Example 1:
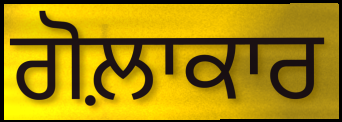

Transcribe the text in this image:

ਗੋਲ਼ਾਕਾਰ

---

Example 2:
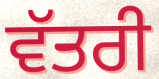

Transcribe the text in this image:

ਵੱਤਰੀ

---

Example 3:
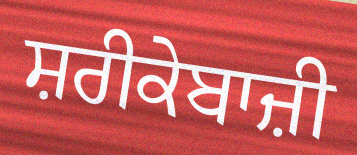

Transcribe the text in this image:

ਸ਼ਰੀਕੇਬਾਜ਼ੀ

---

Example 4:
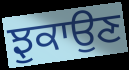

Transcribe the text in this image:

ਝੁਕਾਉਣ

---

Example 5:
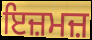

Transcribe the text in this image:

ਇਜ਼ਮਜ਼